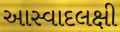
આસ્વાદલક્ષી